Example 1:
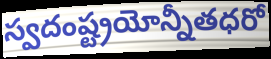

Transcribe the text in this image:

స్వదంష్ట్రయోన్నీతధరో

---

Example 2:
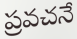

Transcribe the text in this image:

ప్రవచనే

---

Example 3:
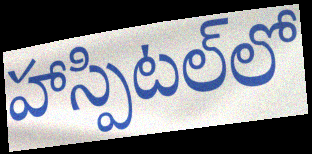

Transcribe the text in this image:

హాస్పిటల్‌లో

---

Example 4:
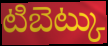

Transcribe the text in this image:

టిబెట్కు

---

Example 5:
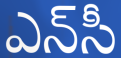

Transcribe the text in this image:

ఎన్‌సీ